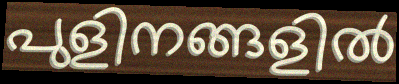
പുളിനങ്ങളിൽ